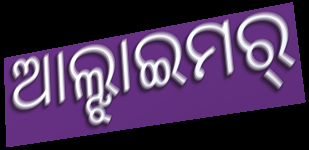
ଆଲ୍ଝାଇମର୍